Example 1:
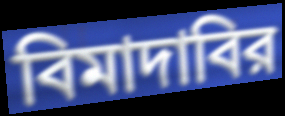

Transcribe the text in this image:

বিমাদাবির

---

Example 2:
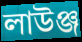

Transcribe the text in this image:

লাউঞ্জ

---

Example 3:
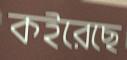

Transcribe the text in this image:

কইরেছে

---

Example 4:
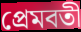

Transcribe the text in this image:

প্রেমবতী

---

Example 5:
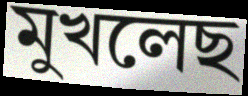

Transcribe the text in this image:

মুখলেছ